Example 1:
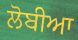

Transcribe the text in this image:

ਲੋਬੀਆ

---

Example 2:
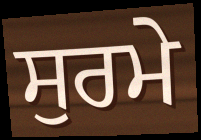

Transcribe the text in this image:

ਸੁਰਮੇ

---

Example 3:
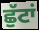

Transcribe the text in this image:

ਛੁੱਟਾਂ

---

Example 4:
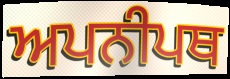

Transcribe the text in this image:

ਅਪਨੀਪਥ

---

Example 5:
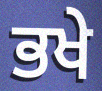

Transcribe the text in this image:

ਭਖੇ